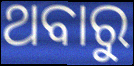
ଥବାରୁ